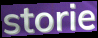
storie